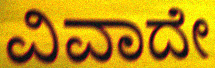
ವಿವಾದೇ